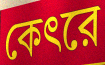
কেৎরে